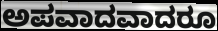
ಅಪವಾದವಾದರೂ